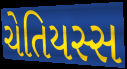
ચેતિયસ્સ